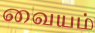
வையம்